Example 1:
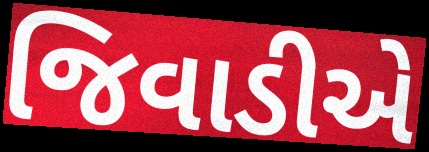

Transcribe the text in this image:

જિવાડીએ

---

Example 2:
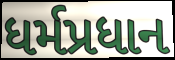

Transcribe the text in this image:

ધર્મપ્રધાન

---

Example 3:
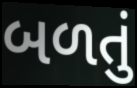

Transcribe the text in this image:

બળતું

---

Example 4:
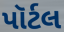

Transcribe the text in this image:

પૉર્ટલ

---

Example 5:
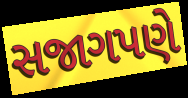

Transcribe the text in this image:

સજાગપણે